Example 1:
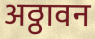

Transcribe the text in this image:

अठ्ठावन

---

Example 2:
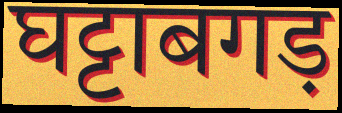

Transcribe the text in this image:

घट्टाबगड़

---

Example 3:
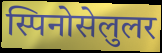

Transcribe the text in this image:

स्पिनोसेलुलर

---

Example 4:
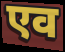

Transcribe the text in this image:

एव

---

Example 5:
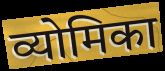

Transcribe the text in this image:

व्योमिका